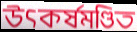
উৎকর্ষমণ্ডিত